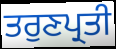
ਤਰੁਣਪ੍ਰਤੀ